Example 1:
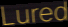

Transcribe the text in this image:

Lured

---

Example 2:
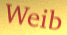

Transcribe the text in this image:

Weib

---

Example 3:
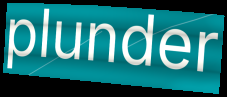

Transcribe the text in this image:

plunder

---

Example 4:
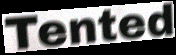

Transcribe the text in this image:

Tented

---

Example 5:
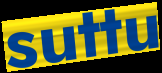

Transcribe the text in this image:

suttu